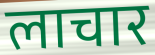
लाचार